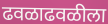
ढवळाढवळीला